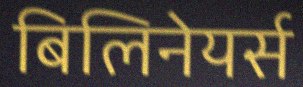
बिलिनेयर्स